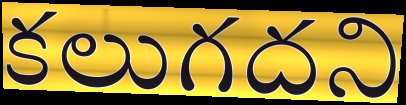
కలుగదని